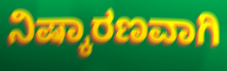
ನಿಷ್ಕಾರಣವಾಗಿ